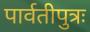
पार्वतीपुत्रः